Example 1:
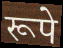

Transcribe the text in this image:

रूपे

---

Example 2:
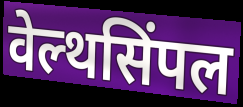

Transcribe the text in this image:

वेल्थसिंपल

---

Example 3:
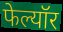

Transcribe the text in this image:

फेल्यॉर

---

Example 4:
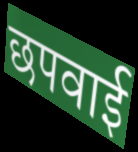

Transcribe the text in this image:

छपवाई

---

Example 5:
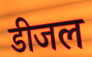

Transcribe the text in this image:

डीजल